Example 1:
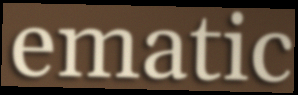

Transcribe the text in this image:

ematic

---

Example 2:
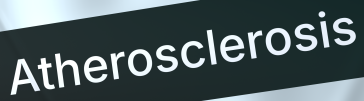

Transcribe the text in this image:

Atherosclerosis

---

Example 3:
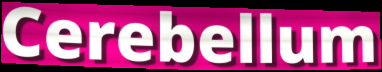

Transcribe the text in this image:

Cerebellum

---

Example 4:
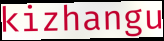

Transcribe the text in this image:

kizhangu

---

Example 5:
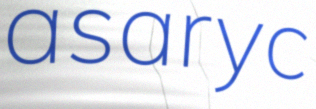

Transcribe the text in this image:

asaryc